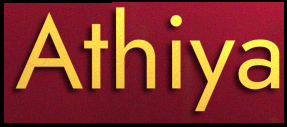
Athiya